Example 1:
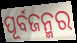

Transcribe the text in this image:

ପୂର୍ବଜନ୍ମର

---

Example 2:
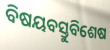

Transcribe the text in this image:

ବିଷୟବସ୍ତୁବିଶେଷ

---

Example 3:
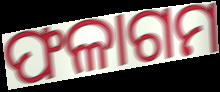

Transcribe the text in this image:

ଫଳାଗମ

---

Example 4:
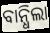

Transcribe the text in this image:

ବାନ୍ଧିଲା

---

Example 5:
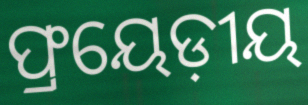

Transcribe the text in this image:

ଫ୍ରୟେଡ଼ୀୟ